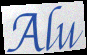
Alu